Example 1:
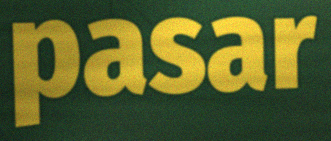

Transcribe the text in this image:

pasar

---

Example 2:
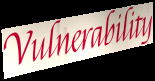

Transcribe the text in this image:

Vulnerability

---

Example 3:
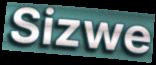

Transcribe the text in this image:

Sizwe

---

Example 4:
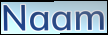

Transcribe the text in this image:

Naam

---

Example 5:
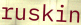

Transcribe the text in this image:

ruskin